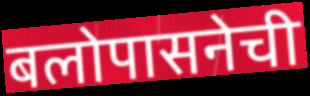
बलोपासनेची